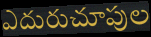
ఎదురుచూపుల